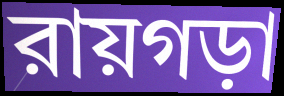
রায়গড়া